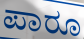
ಪಾರೂ